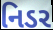
નિડર